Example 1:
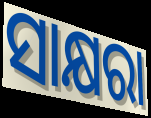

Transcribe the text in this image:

ସାକ୍ଷରା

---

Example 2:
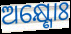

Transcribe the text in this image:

ଅକ୍ଷ୍ଣୋଃ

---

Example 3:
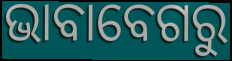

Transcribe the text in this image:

ଭାବାବେଗରୁ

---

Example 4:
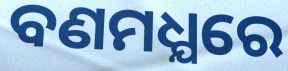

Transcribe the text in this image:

ବଣମଧ୍ଯରେ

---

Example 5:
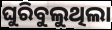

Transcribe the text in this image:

ଘୁରିବୁଲୁଥିଲା